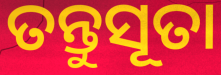
ତନ୍ତୁସୂତା